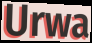
Urwa